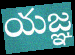
యజ్ఞ